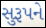
સુરૂપને